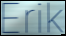
Erik